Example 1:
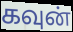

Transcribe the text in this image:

கவுன்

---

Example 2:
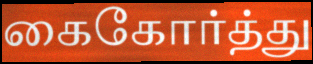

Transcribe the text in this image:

கைகோர்த்து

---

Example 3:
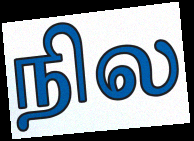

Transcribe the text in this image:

நில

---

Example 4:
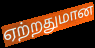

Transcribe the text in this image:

ஏற்றதுமான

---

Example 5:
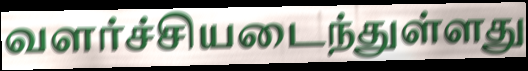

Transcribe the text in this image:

வளர்ச்சியடைந்துள்ளது